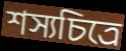
শস্যচিত্রে